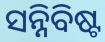
ସନ୍ନିବିଷ୍ଟ